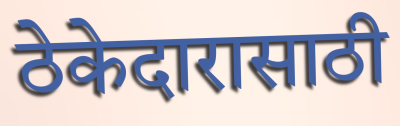
ठेकेदारासाठी